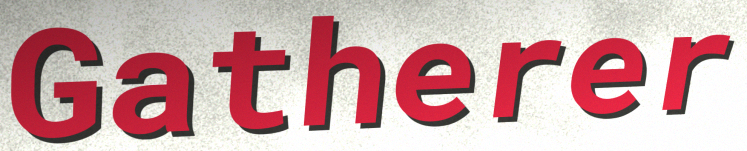
Gatherer